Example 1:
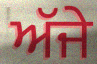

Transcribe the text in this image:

ਅੱਜੇ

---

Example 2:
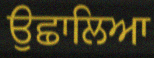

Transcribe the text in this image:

ਉਛਾਲਿਆ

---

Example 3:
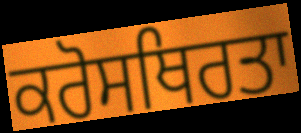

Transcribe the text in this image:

ਕਰੋਸਥਿਰਤਾ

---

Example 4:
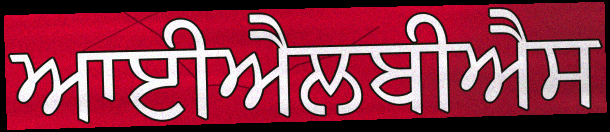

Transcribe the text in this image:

ਆਈਐਲਬੀਐਸ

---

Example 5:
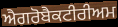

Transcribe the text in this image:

ਐਗਰੋਬੈਕਟੀਰੀਅਮ